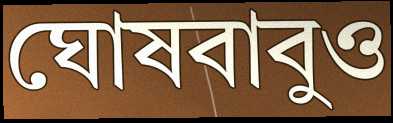
ঘোষবাবুও